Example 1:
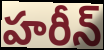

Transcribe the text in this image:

హరీన్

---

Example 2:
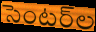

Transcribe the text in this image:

సెంటర్‌ల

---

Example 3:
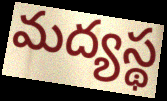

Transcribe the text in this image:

మద్యస్థ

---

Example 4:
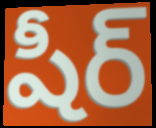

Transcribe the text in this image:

షీర్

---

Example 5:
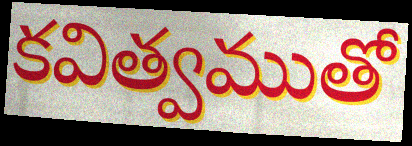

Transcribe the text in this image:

కవిత్వముతో